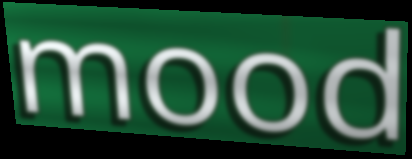
mood